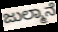
ಜುಲ್ಮಾನೆ